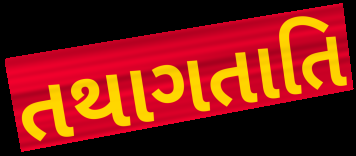
તથાગતાતિ